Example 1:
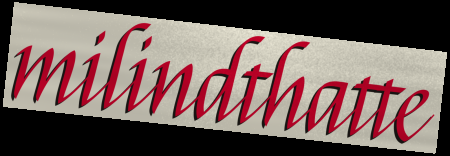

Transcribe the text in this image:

milindthatte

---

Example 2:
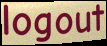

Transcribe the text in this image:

logout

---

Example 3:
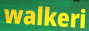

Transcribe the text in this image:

walkeri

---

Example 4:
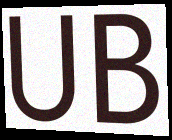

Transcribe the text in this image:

UB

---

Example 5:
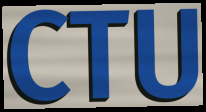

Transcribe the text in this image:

CTU